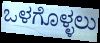
ಒಳಗೊಳ್ಳಲು